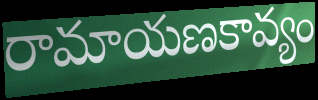
రామాయణకావ్యం